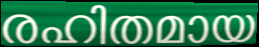
രഹിതമായ